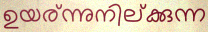
ഉയര്ന്നുനില്ക്കുന്ന